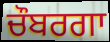
ਚੌਬਰਗਾ